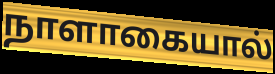
நாளாகையால்